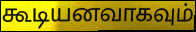
கூடியனவாகவும்